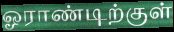
ஓராண்டிற்குள்